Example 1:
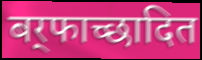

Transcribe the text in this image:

बर्फाच्छादित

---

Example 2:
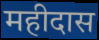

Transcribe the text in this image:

महीदास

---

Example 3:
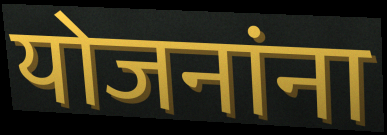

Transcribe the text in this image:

योजनांना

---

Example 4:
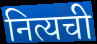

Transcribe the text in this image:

नित्यची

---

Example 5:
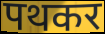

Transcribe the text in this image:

पथकर